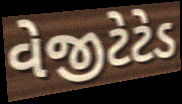
વેજીટેટેડ